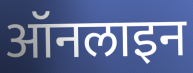
ऑनलाइन